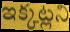
ఇక్కట్లని